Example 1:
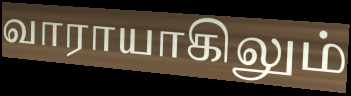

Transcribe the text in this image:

வாராயாகிலும்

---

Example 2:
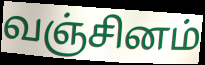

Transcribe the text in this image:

வஞ்சினம்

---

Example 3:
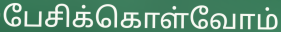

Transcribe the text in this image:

பேசிக்கொள்வோம்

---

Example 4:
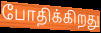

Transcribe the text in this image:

போதிக்கிறது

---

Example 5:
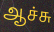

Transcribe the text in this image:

ஆச்சு